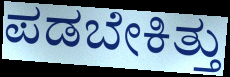
ಪಡಬೇಕಿತ್ತು